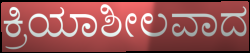
ಕ್ರಿಯಾಶೀಲವಾದ